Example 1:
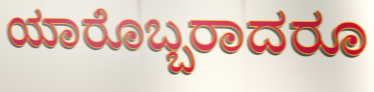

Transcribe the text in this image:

ಯಾರೊಬ್ಬರಾದರೂ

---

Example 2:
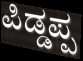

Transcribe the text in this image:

ಪಿಡ್ಡಪ್ಪ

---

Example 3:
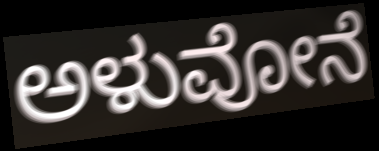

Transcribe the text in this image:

ಅಳುವೋನೆ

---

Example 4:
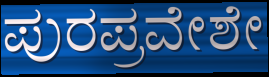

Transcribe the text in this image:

ಪುರಪ್ರವೇಶೇ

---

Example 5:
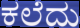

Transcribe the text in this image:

ಕಲೆದು